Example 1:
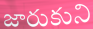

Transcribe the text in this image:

జారుకుని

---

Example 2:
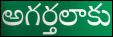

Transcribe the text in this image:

అగర్తలాకు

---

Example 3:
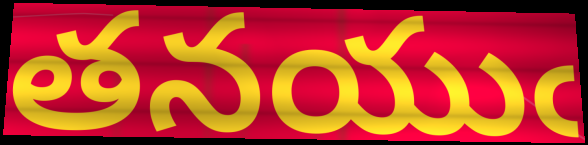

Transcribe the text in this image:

తనయుఁ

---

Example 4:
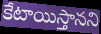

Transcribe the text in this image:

కేటాయిస్తానని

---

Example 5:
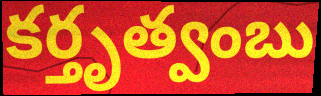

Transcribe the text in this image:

కర్తృత్వంబు